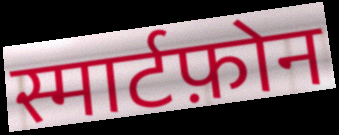
स्मार्टफ़ोन